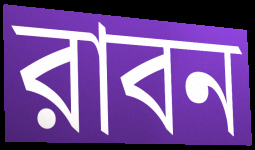
রাবন